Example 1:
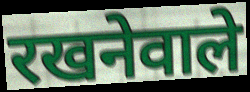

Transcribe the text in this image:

रखनेवाले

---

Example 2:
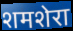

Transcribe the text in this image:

शमशेरा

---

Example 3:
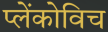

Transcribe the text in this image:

प्लेंकोविच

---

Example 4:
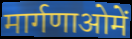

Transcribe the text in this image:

मार्गणाओमें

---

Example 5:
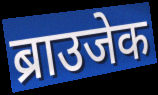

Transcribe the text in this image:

ब्राउजेक